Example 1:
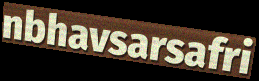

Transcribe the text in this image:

nbhavsarsafri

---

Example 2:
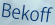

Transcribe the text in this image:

Bekoff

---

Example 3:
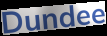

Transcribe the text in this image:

Dundee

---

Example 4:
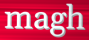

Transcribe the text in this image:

magh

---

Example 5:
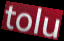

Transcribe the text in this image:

tolu